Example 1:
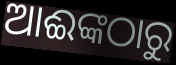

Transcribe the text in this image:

ଆଈଙ୍କଠାରୁ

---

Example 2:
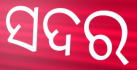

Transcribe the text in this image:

ସଦର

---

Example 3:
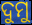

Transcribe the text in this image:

ଦୁମୁ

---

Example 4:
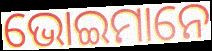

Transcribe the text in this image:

ଭୋଇମାନେ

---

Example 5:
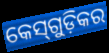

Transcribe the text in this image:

କେସ୍‌ଗୁଡ଼ିକର